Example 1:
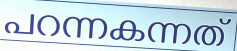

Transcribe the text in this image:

പറന്നകന്നത്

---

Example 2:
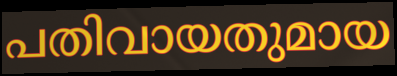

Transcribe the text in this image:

പതിവായതുമായ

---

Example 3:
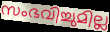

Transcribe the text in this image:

സംഭവിച്ചുമില്ല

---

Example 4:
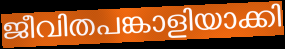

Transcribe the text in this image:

ജീവിതപങ്കാളിയാക്കി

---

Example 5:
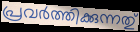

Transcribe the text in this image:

പ്രവർത്തിക്കുന്നതു്